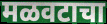
मळवटाचा